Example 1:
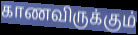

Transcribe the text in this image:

காணவிருக்கும்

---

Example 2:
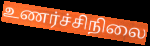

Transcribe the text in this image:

உணர்ச்சிநிலை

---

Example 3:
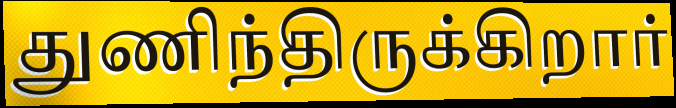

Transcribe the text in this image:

துணிந்திருக்கிறார்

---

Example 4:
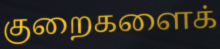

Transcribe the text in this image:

குறைகளைக்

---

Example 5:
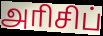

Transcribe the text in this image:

அரிசிப்